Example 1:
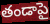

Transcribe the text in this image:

తండాపై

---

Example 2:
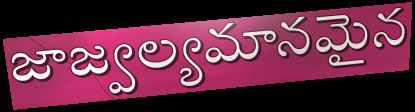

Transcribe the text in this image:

జాజ్వల్యమానమైన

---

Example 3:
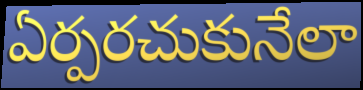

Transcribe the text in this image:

ఏర్పరచుకునేలా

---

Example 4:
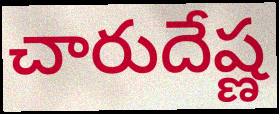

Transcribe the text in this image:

చారుదేష్ణ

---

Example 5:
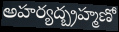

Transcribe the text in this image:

అహర్యద్బ్రహ్మణో